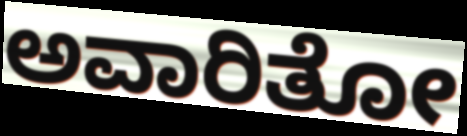
ಅವಾರಿತೋ